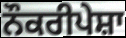
ਨੌਕਰੀਪੇਸ਼ਾ